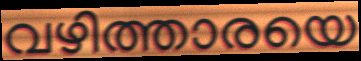
വഴിത്താരയെ